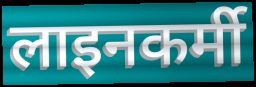
लाइनकर्मी